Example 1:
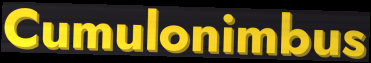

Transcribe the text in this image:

Cumulonimbus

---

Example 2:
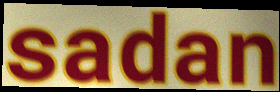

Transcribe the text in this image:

sadan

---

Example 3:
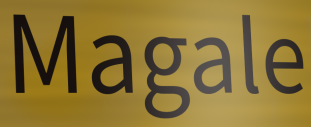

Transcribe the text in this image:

Magale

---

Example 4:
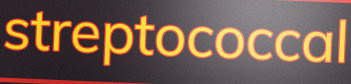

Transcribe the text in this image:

streptococcal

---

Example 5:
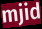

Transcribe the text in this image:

mjid